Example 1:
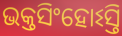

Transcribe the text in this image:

ଭକ୍ତସିଂହୋଽସ୍ତି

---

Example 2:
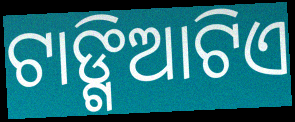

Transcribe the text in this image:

ଟାଙ୍ଗିଆଟିଏ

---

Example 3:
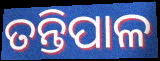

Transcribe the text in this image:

ତନ୍ତିପାଳ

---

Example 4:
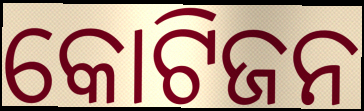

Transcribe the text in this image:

କୋଟିଜନ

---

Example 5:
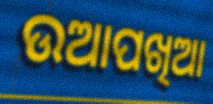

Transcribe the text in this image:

ଉଆପଖିଆ